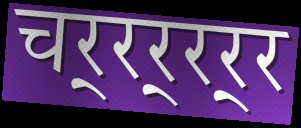
चर्रर्रर्र